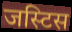
जस्‍टिस